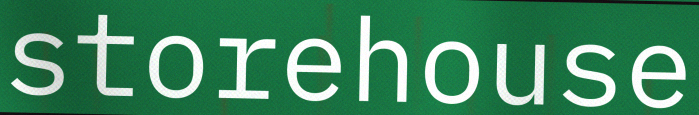
storehouse